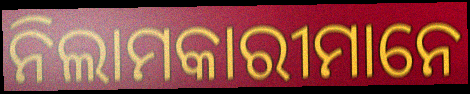
ନିଲାମକାରୀମାନେ